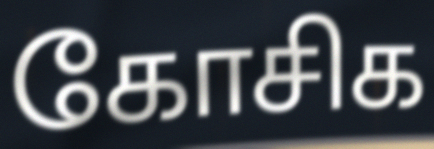
கோசிக